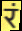
रं